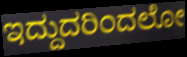
ಇದ್ದುದರಿಂದಲೋ